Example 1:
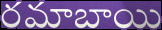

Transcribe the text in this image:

రమాబాయి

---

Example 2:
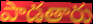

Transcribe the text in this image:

పాడతారు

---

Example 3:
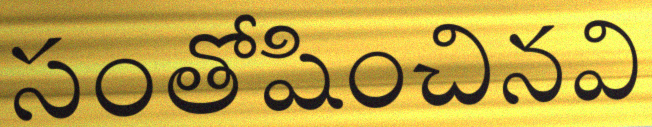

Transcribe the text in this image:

సంతోషించినవి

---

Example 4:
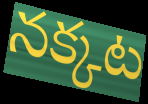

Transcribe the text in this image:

నక్కట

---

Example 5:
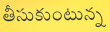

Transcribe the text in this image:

తీసుకుంటున్న